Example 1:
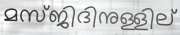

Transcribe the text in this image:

മസ്ജിദിനുള്ളില്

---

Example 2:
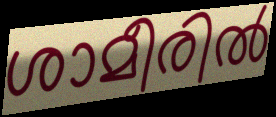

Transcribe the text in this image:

ശാമീരിൽ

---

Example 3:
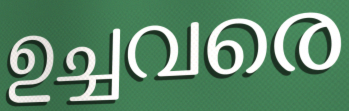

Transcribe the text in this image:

ഉച്ചവരെ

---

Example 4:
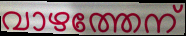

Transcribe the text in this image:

വാഴത്തേന്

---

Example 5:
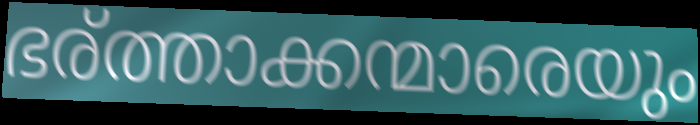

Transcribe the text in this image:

ഭര്ത്താക്കന്മാരെയും